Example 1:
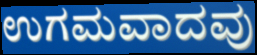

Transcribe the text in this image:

ಉಗಮವಾದವು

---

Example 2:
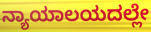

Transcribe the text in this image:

ನ್ಯಾಯಾಲಯದಲ್ಲೇ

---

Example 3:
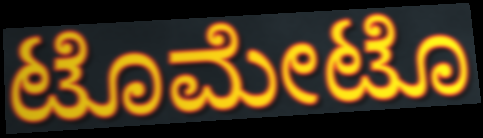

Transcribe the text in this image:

ಟೊಮೇಟೊ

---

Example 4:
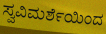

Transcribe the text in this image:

ಸ್ವವಿಮರ್ಶೆಯಿಂದ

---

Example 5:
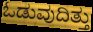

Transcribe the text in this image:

ಓಡುವುದಿತ್ತು